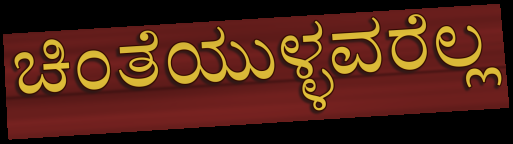
ಚಿಂತೆಯುಳ್ಳವರೆಲ್ಲ